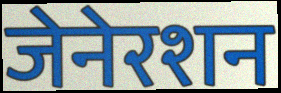
जेनेरशन